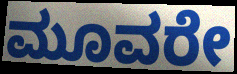
ಮೂವರೇ